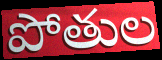
పోతుల